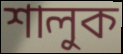
শালুক